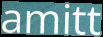
amitt